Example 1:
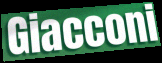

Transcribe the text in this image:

Giacconi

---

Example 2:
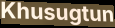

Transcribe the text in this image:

Khusugtun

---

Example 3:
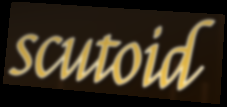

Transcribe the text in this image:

scutoid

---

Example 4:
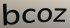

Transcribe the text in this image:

bcoz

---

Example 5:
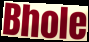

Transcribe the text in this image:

Bhole